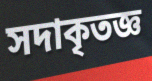
সদাকৃতজ্ঞ